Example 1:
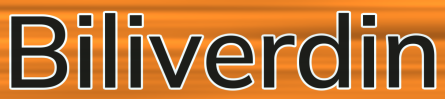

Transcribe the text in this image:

Biliverdin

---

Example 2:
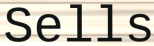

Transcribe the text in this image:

Sells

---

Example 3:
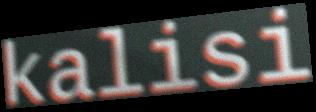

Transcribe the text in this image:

kalisi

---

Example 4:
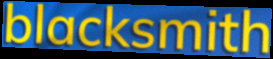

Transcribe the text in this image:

blacksmith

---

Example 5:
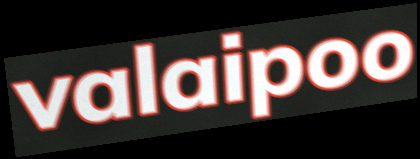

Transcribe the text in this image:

valaipoo